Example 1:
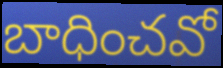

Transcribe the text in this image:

బాధించవో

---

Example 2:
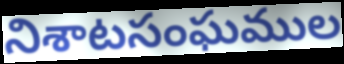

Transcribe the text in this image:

నిశాటసంఘముల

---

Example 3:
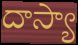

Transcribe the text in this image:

దాస్యా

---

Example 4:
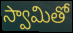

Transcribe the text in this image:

స్వామితో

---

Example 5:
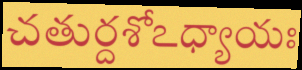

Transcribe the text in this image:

చతుర్దశోఽధ్యాయః